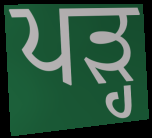
ਪੜ੍ਹ